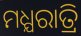
ମଧ୍ଯରାତ୍ରି